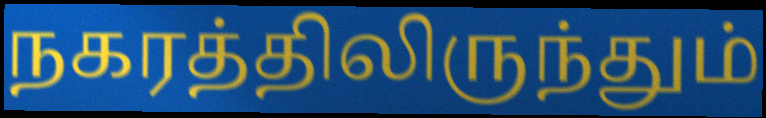
நகரத்திலிருந்தும்